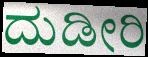
ದುಡೀರಿ